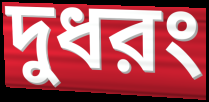
দুধরং